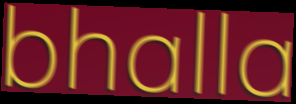
bhalla